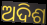
ଅଦିଶ